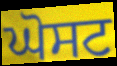
ਘੋਸਟ